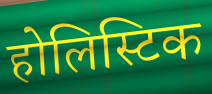
होलिस्टिक